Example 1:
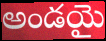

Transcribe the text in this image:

అండయై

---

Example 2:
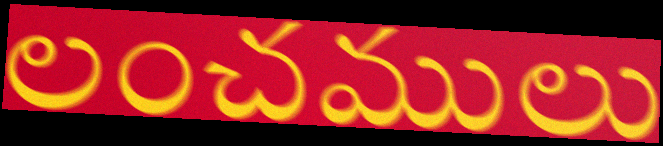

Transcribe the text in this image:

లంచములు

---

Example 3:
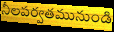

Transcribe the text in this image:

నీలపర్వతమునుండి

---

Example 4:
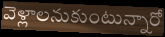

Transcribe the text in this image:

వెళ్లాలనుకుంటున్నారో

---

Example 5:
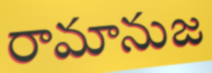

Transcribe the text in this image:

రామానుజ